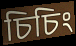
চিচিং